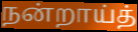
நன்றாய்த்